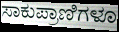
ಸಾಕುಪ್ರಾಣಿಗಳೂ